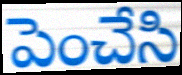
పెంచేసి